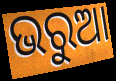
ଭରୁଆ